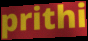
prithi